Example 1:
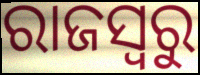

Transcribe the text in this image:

ରାଜସ୍ୱରୁ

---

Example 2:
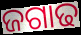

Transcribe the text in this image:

ଜଗାଢ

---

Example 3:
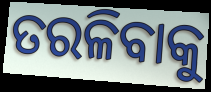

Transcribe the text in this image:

ତରଳିବାକୁ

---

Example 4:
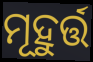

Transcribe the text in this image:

ମୂହୁର୍ତ୍ତ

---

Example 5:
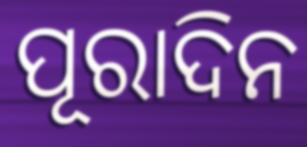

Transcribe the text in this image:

ପୂରାଦିନ